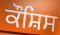
ਕੌਸ਼ਿਸ